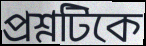
প্রশ্নটিকে